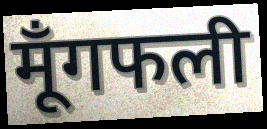
मूँगफली